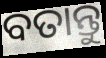
ବତାନ୍ତୁ